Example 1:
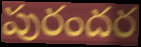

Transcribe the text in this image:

పురందర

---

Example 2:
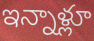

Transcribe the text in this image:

ఇన్నాళ్లూ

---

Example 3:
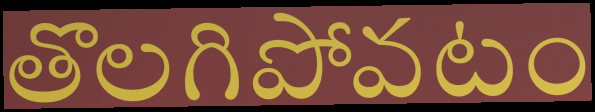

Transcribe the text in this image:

తొలగిపోవటం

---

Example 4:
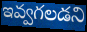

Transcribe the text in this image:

ఇవ్వగలడని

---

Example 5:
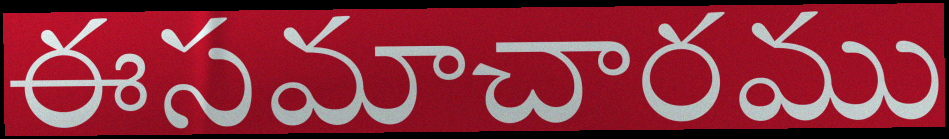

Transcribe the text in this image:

ఈసమాచారము